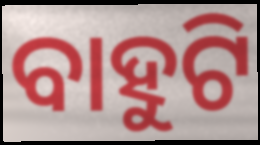
ବାହୁଟି